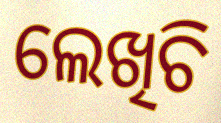
ଲେଖିଚି